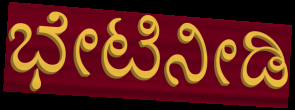
ಭೇಟಿನೀಡಿ